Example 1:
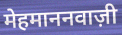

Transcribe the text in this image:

मेहमाननवाज़ी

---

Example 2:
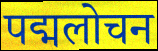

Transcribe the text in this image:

पद्मलोचन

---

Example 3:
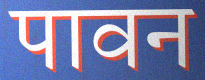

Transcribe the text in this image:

पावन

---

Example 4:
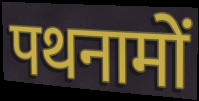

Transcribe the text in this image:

पथनामों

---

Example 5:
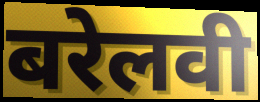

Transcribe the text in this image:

बरेलवी